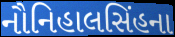
નૌનિહાલસિંહના